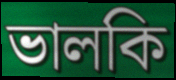
ভালকি